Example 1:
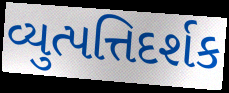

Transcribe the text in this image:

વ્યુત્પત્તિદર્શક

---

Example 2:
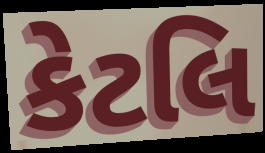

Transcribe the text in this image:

કેટલિ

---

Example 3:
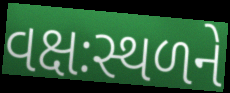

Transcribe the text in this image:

વક્ષઃસ્થળને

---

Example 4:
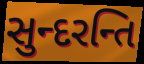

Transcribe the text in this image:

સુન્દરન્તિ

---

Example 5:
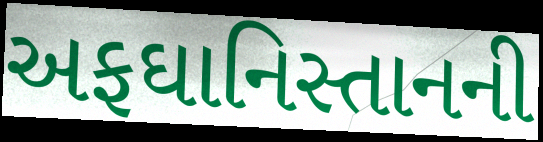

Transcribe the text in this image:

અફઘાનિસ્તાનની